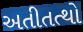
અતીતત્થો